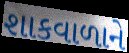
શાકવાળાને